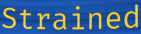
Strained